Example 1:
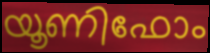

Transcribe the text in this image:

യൂണിഫോം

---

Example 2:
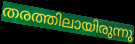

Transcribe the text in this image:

തരത്തിലായിരുന്നു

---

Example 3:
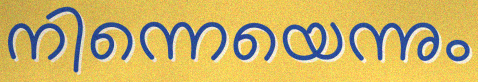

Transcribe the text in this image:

നിന്നെയെന്നും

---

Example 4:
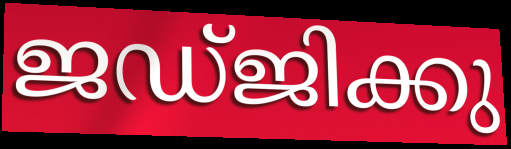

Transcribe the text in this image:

ജഡ്ജിക്കു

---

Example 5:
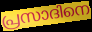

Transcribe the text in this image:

പ്രസാദിനെ